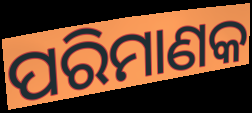
ପରିମାଣକ